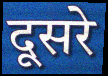
दूसरे